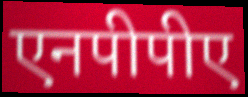
एनपीपीए